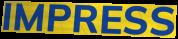
IMPRESS